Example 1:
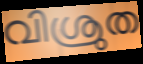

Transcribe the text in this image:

വിശ്രുത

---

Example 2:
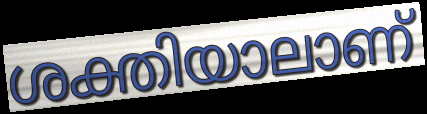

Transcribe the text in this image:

ശക്തിയാലാണ്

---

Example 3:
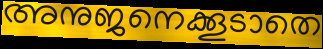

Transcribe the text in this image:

അനുജനെക്കൂടാതെ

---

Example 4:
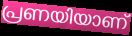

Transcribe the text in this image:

പ്രണയിയാണ്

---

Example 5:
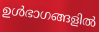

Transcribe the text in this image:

ഉൾഭാഗങ്ങളിൽ